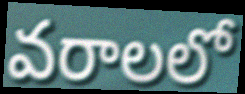
వరాలలో